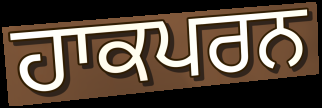
ਹਾਕਪਰਨ